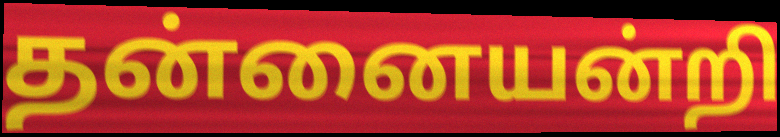
தன்னையன்றி